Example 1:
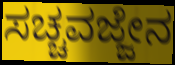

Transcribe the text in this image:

ಸಚ್ಚವಜ್ಜೇನ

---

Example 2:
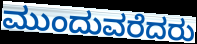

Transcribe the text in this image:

ಮುಂದುವರೆದರು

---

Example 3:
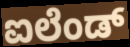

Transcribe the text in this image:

ಐಲೆಂಡ್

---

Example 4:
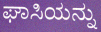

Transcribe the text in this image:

ಘಾಸಿಯನ್ನು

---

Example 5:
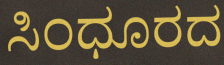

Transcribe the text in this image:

ಸಿಂಧೂರದ